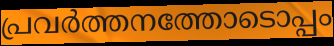
പ്രവർത്തനത്തോടൊപ്പം